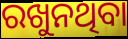
ରଖୁନଥିବା